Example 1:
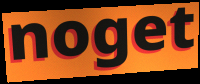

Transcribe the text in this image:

noget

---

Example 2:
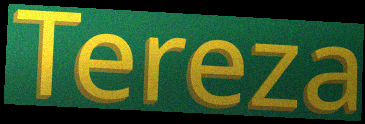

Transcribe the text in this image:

Tereza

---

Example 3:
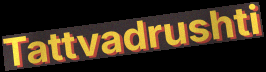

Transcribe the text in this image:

Tattvadrushti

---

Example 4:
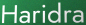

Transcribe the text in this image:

Haridra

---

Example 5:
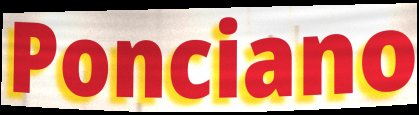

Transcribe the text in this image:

Ponciano